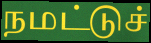
நமட்டுச்